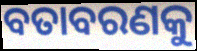
ବତାବରଣକୁ